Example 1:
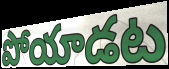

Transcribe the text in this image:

పోయాడట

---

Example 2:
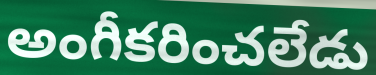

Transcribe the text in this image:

అంగీకరించలేడు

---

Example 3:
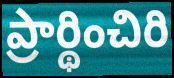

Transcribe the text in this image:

ప్రార్థించిరి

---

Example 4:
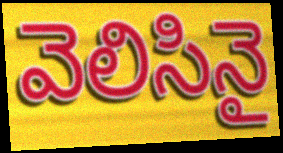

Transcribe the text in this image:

వెలిసినై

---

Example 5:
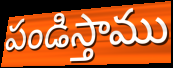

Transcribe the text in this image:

పండిస్తాము